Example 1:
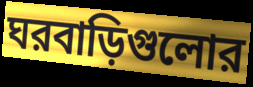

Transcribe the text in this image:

ঘরবাড়িগুলোর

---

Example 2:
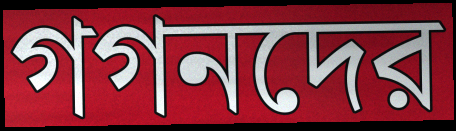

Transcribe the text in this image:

গগনদের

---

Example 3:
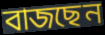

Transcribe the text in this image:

বাজছেন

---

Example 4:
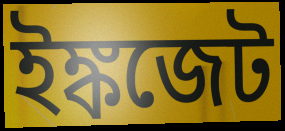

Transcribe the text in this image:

ইঙ্কজেট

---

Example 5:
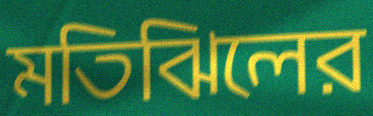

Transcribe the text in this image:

মতিঝিলের